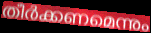
തീർക്കണമെന്നും